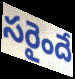
సరైందే